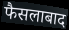
फैसलाबाद